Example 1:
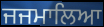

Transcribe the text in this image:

ਜਜਮਾਲਿਆ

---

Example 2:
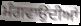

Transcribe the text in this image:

ਮੰਗਵਾਉਂਦੀਆਂ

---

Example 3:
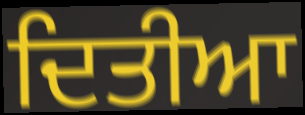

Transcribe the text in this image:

ਦਿਤੀਆ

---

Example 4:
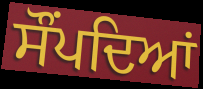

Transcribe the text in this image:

ਸੌਂਪਦਿਆਂ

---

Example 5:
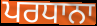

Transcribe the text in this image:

ਪਰਧਾਨਾ